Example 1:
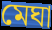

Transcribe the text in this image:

মেঘা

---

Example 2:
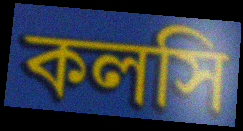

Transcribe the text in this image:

কলসি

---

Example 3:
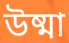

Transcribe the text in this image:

উষ্মা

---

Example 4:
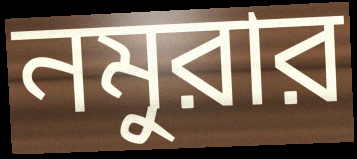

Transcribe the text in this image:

নমুরার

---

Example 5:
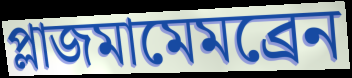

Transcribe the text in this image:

প্লাজমামেমব্রেন